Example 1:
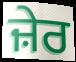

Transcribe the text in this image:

ਜ਼ੇਰ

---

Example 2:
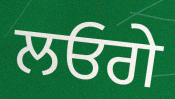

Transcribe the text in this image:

ਲਓਗੇ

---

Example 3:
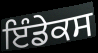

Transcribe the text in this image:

ਇੰਡੇਕਸ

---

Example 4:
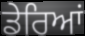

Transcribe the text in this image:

ਡੇਰਿਆਂ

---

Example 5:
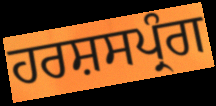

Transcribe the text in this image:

ਹਰਸ਼ਸਪ੍ਰੰਗ